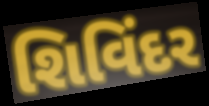
શિવિંદર